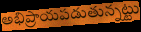
అభిప్రాయపడుతున్నట్టు